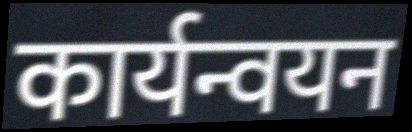
कार्यन्वयन